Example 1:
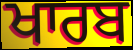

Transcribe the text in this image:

ਖਾਰਬ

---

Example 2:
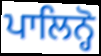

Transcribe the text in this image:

ਪਾਲਿਨ੍ਹੋ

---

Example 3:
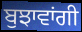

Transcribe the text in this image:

ਬੁਝਾਵਾਂਗੀ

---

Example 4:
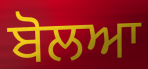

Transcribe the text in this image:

ਬੋਲਆ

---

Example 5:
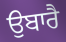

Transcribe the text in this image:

ਉਬਾਰੈ